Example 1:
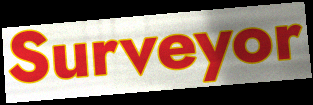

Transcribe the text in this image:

Surveyor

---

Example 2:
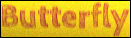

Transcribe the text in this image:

Butterfly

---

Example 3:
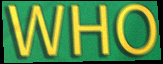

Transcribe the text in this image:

WHO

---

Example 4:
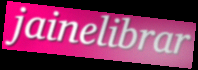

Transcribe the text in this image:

jainelibrar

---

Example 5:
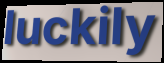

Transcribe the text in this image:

luckily